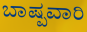
ಬಾಷ್ಪವಾರಿ